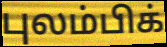
புலம்பிக்